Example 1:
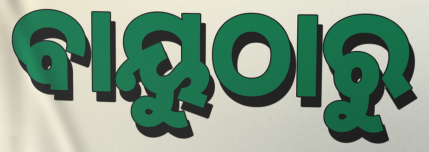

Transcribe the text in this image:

ବାୟୁଠାରୁ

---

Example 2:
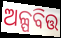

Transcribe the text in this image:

ଅଳ୍ପବିତ୍ତ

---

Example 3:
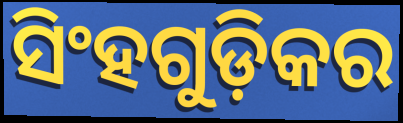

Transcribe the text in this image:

ସିଂହଗୁଡ଼ିକର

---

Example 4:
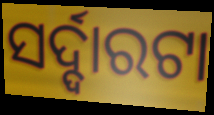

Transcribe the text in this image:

ସର୍ଦ୍ଦାରଟା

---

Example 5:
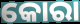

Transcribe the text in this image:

କୋରା